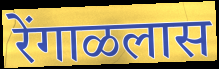
रेंगाळलास